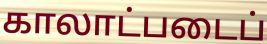
காலாட்படைப்